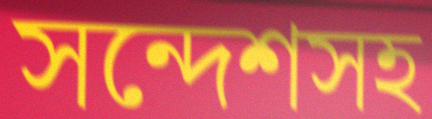
সন্দেশসহ